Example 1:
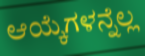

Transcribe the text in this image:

ಆಯ್ಕೆಗಳನ್ನೆಲ್ಲ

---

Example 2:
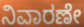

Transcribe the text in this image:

ನಿವಾರಣೇ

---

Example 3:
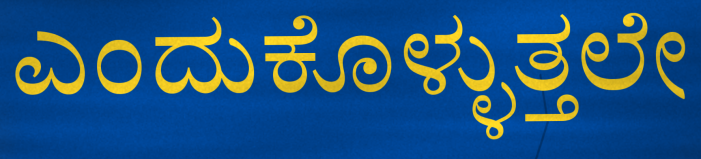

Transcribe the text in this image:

ಎಂದುಕೊಳ್ಳುತ್ತಲೇ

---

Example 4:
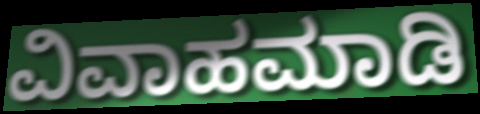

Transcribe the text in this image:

ವಿವಾಹಮಾಡಿ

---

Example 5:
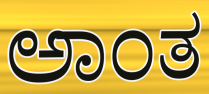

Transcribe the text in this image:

ಅಾಂತ